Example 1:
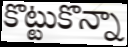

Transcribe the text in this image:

కొట్టుకొన్నా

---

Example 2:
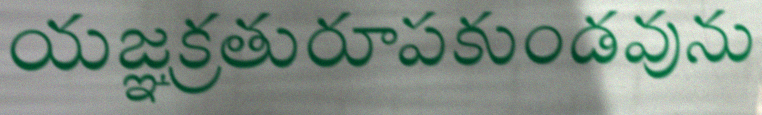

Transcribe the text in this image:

యజ్ఞక్రతురూపకుండవును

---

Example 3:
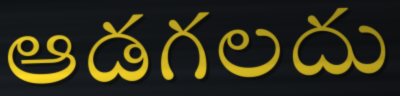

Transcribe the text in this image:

ఆడగలదు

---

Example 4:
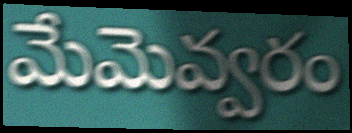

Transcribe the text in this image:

మేమెవ్వరం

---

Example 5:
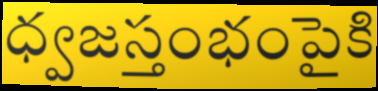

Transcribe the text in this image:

ధ్వజస్తంభంపైకి